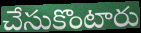
చేసుకొంటారు